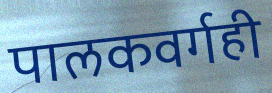
पालकवर्गही